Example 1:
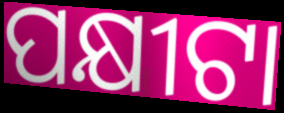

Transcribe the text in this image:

ପକ୍ଷୀଟା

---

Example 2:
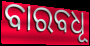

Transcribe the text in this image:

ବାରବଧୂ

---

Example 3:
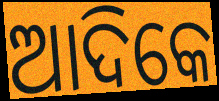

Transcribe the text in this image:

ଆଦିକେ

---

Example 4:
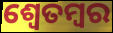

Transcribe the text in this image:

ଶ୍ଵେତମ୍ବର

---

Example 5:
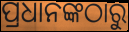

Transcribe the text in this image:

ପ୍ରଧାନଙ୍କଠାରୁ